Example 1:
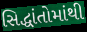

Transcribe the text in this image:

સિદ્ધાંતોમાંથી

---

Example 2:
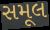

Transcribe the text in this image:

સમૂલ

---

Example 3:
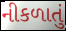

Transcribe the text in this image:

નીકળાતું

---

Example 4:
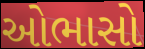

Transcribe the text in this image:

ઓભાસો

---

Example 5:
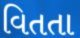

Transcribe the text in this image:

વિતતા